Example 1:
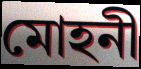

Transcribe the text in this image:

মোহনী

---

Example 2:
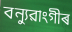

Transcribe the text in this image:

বন্যুৱাংগীৰ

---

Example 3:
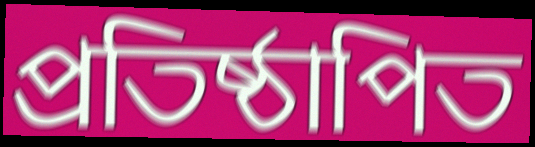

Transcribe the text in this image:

প্ৰতিষ্ঠাপিত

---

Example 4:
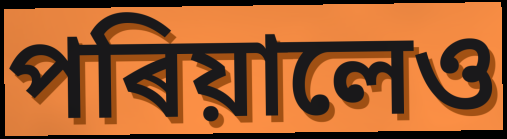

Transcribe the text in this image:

পৰিয়ালেও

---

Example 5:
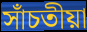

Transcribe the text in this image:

সাঁচতীয়া